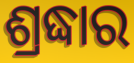
ଶ୍ରଦ୍ଧାର